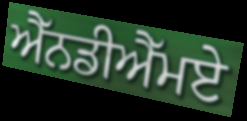
ਐੱਨਡੀਐੱਮਏ